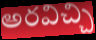
అరవిచ్చి